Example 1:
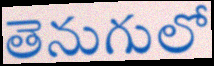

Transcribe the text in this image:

తెనుగులో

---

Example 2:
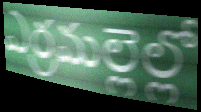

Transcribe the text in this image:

ఎర్రమల్లెల్లో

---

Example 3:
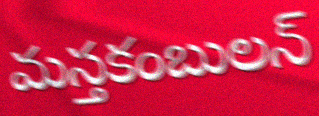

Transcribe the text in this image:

మస్తకంబులన్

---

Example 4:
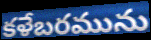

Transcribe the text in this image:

కళేబరమును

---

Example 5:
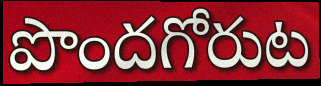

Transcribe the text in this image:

పొందగోరుట